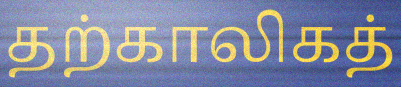
தற்காலிகத்